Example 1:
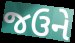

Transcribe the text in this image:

જઉને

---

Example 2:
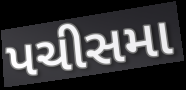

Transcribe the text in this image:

પચીસમા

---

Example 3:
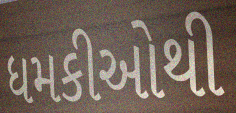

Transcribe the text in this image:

ધમકીઓથી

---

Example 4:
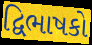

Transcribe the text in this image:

દ્વિભાષકો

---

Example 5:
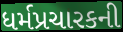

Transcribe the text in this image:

ધર્મપ્રચારકની